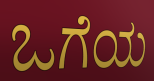
ಒಗೆಯ